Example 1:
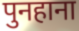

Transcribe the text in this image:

पुनहाना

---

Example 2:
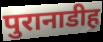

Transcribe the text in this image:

पुरानाडीह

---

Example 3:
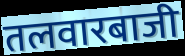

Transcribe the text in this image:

तलवारबाजी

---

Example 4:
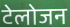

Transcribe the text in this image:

टेलोजन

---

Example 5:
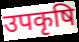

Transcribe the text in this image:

उपकृषि